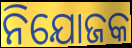
ନିଯୋଜକ